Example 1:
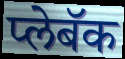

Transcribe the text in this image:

प्लेबॅक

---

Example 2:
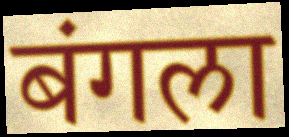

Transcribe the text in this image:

बंगला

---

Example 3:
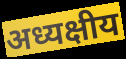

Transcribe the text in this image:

अध्यक्षीय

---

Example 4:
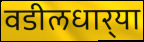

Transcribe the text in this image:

वडीलधार्‍या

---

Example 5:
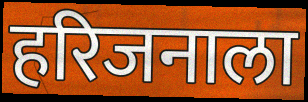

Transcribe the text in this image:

हरिजनाला